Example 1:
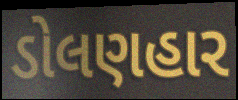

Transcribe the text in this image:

ડોલણહાર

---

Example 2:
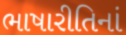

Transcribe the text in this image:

ભાષારીતિનાં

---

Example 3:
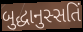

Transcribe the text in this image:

બુદ્ધાનુસ્સતિં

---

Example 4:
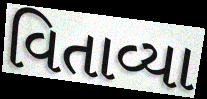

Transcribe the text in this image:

વિતાવ્યા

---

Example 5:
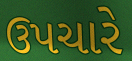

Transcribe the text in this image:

ઉપચારે